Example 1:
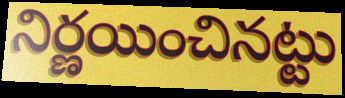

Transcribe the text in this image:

నిర్ణయించినట్టు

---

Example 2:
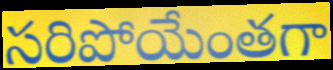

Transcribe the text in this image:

సరిపోయేంతగా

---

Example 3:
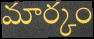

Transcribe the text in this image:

మార్కం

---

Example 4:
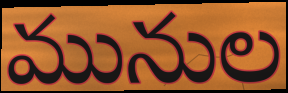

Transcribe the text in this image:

మునుల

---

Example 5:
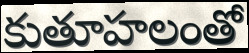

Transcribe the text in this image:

కుతూహలంతో